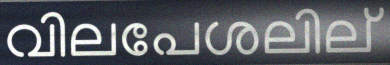
വിലപേശലില്